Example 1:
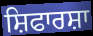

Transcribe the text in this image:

ਸ਼ਿਫਾਰਸ਼ਾ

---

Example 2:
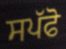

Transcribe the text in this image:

ਸਪੱਫੋ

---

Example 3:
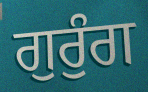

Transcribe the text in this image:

ਗੁਰੁੰਗ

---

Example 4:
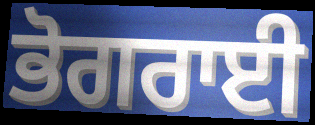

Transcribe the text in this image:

ਭੋਗਰਾਈ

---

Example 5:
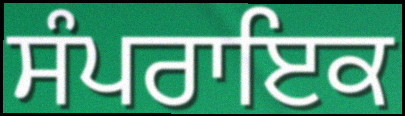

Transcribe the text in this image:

ਸੰਪਰਾਇਕ